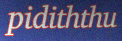
pidiththu